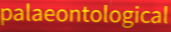
palaeontological